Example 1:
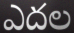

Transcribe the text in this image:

ఎదల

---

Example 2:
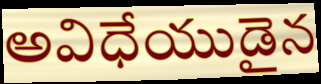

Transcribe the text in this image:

అవిధేయుడైన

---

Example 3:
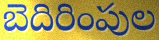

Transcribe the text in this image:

బెదిరింపుల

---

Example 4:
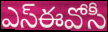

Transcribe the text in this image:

ఎస్ఈవోసీ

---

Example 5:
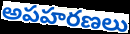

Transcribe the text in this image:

అపహరణలు